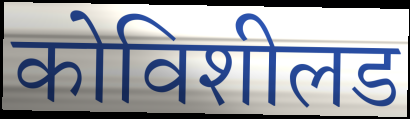
कोविशीलड